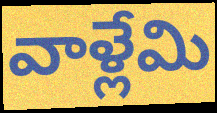
వాళ్లేమి